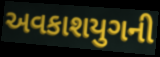
અવકાશયુગની